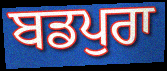
ਬਡਪੁਰਾ